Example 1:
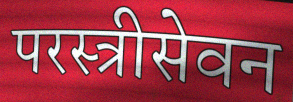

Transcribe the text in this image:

परस्त्रीसेवन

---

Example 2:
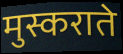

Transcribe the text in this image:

मुस्‍कराते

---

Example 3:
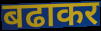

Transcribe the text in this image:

बढाकर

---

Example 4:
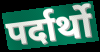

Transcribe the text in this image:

पर्दार्थो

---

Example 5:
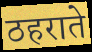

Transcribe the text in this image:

ठहराते